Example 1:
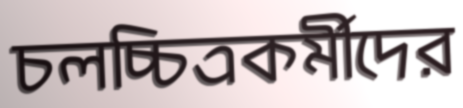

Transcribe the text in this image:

চলচ্চিত্রকর্মীদের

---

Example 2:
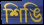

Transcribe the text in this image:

শিঙি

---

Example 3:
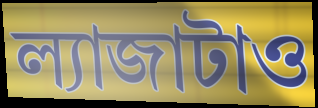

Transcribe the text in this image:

ল্যাজাটাও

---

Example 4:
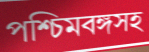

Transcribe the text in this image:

পশ্চিমবঙ্গসহ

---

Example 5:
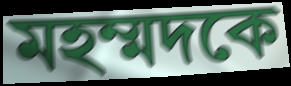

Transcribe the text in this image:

মহম্মদকে